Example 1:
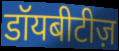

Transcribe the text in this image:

डॉयबीटीज़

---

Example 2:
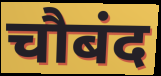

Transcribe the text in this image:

चौबंद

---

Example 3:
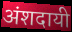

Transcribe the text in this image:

अंशदायी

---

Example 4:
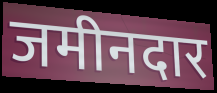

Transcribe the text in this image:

जमीनदार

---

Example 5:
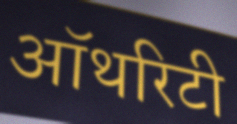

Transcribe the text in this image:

ऑथरिटी